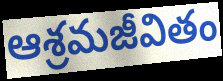
ఆశ్రమజీవితం